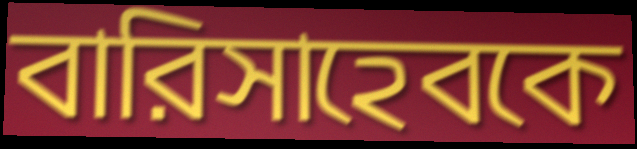
বারিসাহেবকে